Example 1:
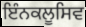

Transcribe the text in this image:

ਇੰਨਕਲੂਸਿਵ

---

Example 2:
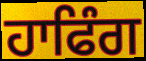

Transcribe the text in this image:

ਹਾਫਿੰਗ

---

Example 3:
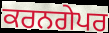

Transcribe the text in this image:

ਕਰਨਗੇਪਰ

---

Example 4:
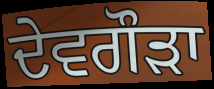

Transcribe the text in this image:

ਦੇਵਗੌੜਾ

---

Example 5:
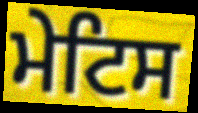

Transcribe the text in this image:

ਮੇਟਿਸ